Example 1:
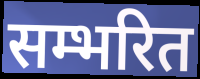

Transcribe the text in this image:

सम्भरित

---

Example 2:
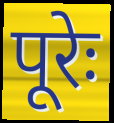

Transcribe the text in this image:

पूरेः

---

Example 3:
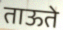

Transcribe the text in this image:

ताऊते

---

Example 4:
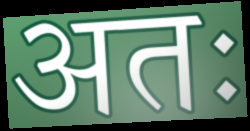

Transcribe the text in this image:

अतः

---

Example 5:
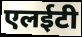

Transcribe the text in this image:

एलईटी